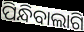
ପିନ୍ଧିବାଲାଗି